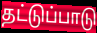
தட்டுப்பாடு